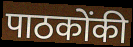
पाठकोंकी